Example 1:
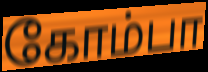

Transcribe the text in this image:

கோம்பா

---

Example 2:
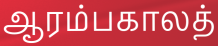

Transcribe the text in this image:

ஆரம்பகாலத்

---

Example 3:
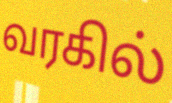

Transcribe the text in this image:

வரகில்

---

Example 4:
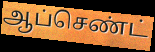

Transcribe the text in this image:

ஆப்செண்ட்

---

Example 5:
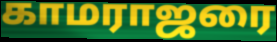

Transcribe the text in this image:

காமராஜரை